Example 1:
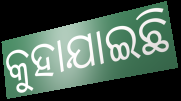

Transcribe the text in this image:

କୁହାଯାଇଛି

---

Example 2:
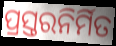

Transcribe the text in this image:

ପ୍ରସ୍ତରନିର୍ମିତ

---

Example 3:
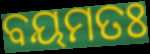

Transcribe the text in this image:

ବୟମତଃ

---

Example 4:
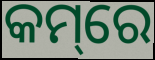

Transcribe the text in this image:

କମ୍‌ରେ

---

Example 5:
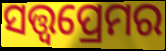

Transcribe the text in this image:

ସତ୍ତ୍ୱପ୍ରେମର